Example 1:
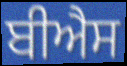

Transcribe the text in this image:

ਬੀਐਸ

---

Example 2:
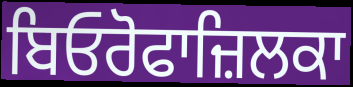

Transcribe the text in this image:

ਬਿਓਰੋਫਾਜ਼ਿਲਕਾ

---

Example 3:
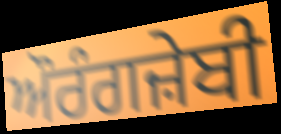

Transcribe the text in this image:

ਔਰੰਗਜ਼ੇਬੀ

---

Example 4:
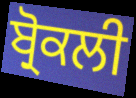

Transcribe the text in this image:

ਬ੍ਰੋਕਲੀ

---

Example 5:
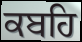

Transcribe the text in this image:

ਕਬਹਿ